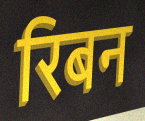
रिबन